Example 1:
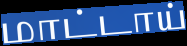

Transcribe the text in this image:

மாட்டாய்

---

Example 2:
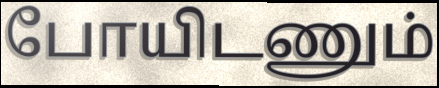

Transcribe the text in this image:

போயிடணும்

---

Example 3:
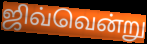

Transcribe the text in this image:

ஜிவ்வென்று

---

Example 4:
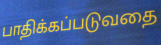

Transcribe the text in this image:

பாதிக்கப்படுவதை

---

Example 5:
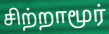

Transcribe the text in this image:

சிற்றாமூர்